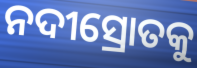
ନଦୀସ୍ରୋତକୁ